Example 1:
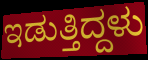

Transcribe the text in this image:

ಇಡುತ್ತಿದ್ದಳು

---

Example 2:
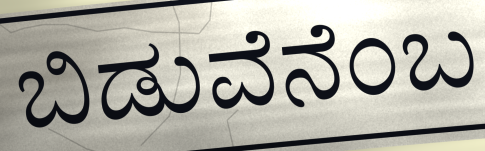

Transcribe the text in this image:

ಬಿಡುವೆನೆಂಬ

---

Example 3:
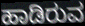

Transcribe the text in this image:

ಹಾಡಿರುವ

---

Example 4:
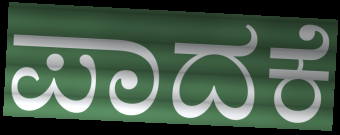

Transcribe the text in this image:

ಪಾದಕೆ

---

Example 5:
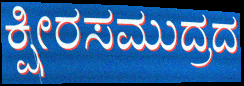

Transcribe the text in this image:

ಕ್ಷೀರಸಮುದ್ರದ